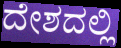
ದೇಶದಲ್ಲಿ